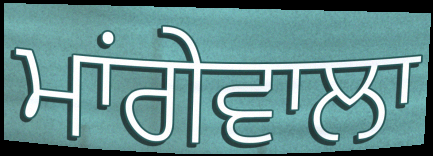
ਮਾਂਗੇਵਾਲਾ